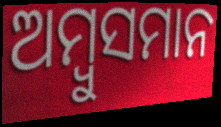
ଅମ୍ବୁସମାନ